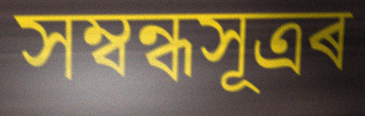
সম্বন্ধসূত্ৰৰ